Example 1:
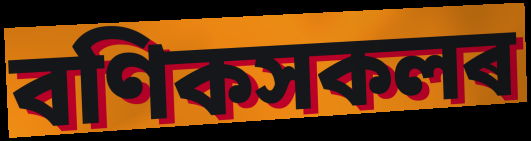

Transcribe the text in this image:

বণিকসকলৰ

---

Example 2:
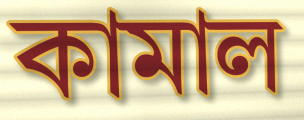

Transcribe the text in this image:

কামাল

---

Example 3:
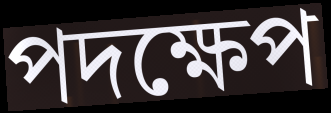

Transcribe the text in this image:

পদক্ষেপ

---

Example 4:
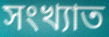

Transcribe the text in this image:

সংখ্যাত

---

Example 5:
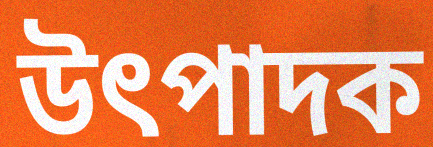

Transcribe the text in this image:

উৎপাদক